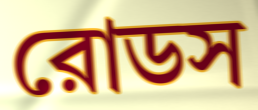
রোডস